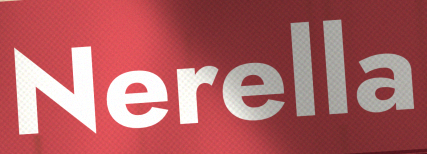
Nerella